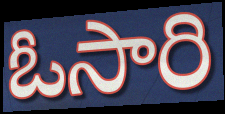
ఓసారి